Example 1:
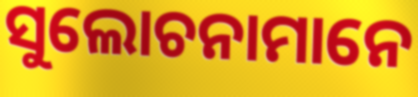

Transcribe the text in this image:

ସୁଲୋଚନାମାନେ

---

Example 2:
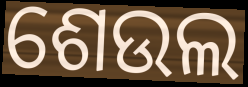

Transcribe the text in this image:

ଶେଉଲ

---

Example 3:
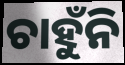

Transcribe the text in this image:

ଚାହୁଁନି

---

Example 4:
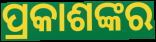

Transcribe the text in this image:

ପ୍ରକାଶଙ୍କର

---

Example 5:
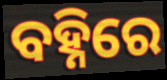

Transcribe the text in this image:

ବହ୍ନିରେ